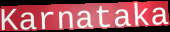
Karnataka